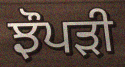
ਝੌਪੜੀ